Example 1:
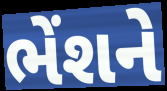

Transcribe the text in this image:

ભેંશને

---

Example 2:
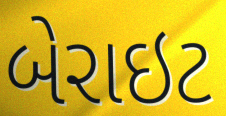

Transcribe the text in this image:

બેરાઇટ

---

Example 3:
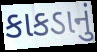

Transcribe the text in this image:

કાકડાનું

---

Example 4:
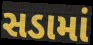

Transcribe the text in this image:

સડામાં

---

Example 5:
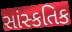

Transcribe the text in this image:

સાંસ્કતિક